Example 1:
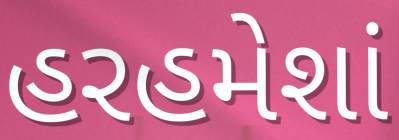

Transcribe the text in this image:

હરહમેશાં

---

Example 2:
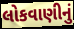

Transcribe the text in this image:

લોકવાણીનું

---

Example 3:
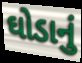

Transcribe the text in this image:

ઘોડાનું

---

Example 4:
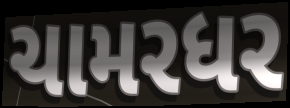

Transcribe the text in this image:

ચામરધર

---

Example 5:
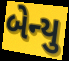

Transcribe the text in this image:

બેન્યુ